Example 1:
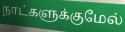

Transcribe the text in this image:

நாட்களுக்குமேல்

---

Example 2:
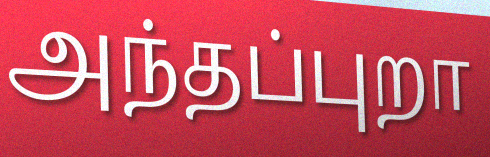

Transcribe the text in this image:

அந்தப்புறா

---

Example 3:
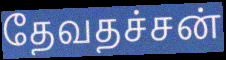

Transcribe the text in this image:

தேவதச்சன்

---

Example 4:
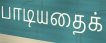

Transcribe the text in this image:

பாடியதைக்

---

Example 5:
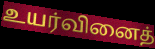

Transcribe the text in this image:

உயர்வினைத்